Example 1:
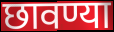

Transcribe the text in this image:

छावण्या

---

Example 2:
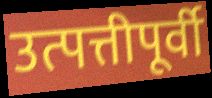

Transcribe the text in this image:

उत्पत्तीपूर्वी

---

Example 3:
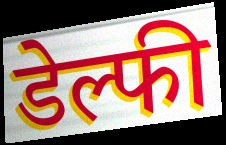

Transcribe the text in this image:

डेल्फी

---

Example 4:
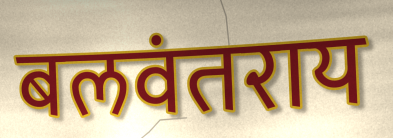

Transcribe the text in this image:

बलवंतराय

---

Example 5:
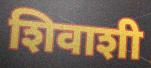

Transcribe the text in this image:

शिवाशी